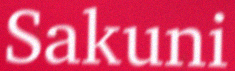
Sakuni